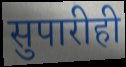
सुपारीही